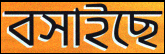
বসাইছে